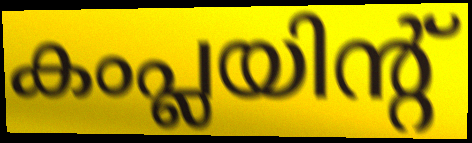
കംപ്ലയിന്റ്